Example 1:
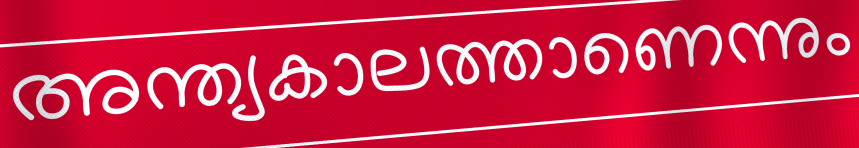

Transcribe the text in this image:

അന്ത്യകാലത്താണെന്നും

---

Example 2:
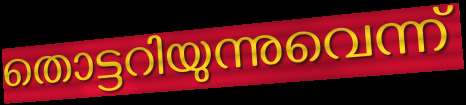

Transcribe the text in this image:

തൊട്ടറിയുന്നുവെന്ന്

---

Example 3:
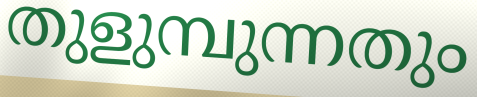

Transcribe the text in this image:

തുളുമ്പുന്നതും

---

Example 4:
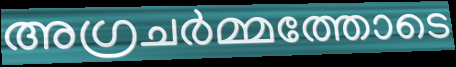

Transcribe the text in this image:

അഗ്രചർമ്മത്തോടെ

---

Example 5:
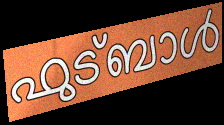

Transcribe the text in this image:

ഫുട്ബാൾ